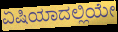
ಏಷಿಯಾದಲ್ಲಿಯೇ